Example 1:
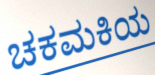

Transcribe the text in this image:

ಚಕಮಕಿಯ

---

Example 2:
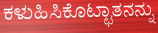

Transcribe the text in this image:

ಕಳುಹಿಸಿಕೊಟ್ಟಾತನನ್ನು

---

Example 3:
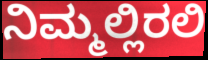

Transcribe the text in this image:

ನಿಮ್ಮಲ್ಲಿರಲಿ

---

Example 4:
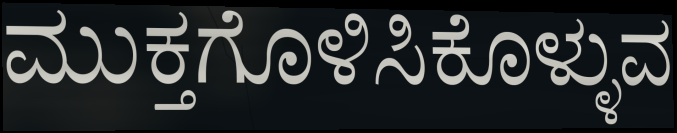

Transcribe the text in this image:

ಮುಕ್ತಗೊಳಿಸಿಕೊಳ್ಳುವ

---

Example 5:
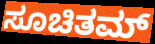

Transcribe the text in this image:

ಸೂಚಿತಮ್